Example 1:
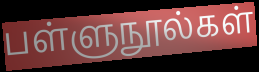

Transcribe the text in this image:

பள்ளுநூல்கள்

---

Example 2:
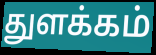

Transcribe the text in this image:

துளக்கம்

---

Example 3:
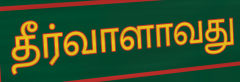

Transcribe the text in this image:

தீர்வாளாவது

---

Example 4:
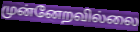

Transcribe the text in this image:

முன்னேறவில்லை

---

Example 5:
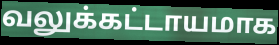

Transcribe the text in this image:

வலுக்கட்டாயமாக